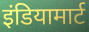
इंडियामार्ट